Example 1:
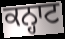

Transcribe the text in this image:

ਕਨ੍ਹਾਟ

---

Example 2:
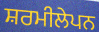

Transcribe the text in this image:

ਸ਼ਰਮੀਲੇਪਨ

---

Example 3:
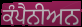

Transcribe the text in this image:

ਕੰਪੈਨੀਅਨ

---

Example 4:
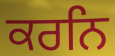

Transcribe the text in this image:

ਕਰਨਿ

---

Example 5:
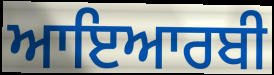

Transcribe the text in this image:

ਆਇਆਰਬੀ